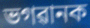
ভগৱানক